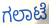
ಗಲಾಟೆ